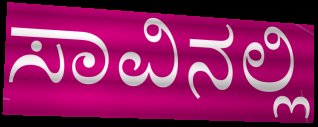
ಸಾವಿನಲ್ಲಿ